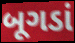
બૂગડાં